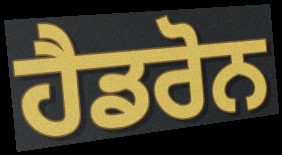
ਹੈਡਰੋਨ